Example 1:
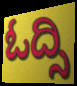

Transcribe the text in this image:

ಓದ್ಸಿ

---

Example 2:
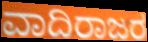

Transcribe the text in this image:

ವಾದಿರಾಜರ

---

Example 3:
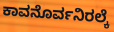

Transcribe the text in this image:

ಕಾವನೊರ್ವನಿರಲ್ಕೆ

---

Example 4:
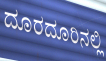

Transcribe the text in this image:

ದೂರದೂರಿನಲ್ಲಿ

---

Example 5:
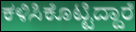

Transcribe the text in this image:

ಕಳಿಸಿಕೊಟ್ಟಿದ್ದಾರೆ